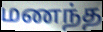
மணந்த